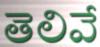
తెలివే